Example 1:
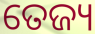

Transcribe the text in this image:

ତେଜ୍ୟ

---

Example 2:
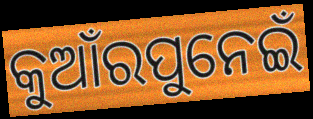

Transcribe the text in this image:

କୁଆଁରପୁନେଇଁ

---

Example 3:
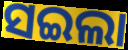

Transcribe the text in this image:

ସଇଲା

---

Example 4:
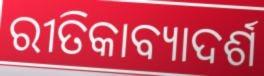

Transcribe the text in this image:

ରୀତିକାବ୍ୟାଦର୍ଶ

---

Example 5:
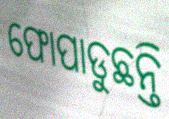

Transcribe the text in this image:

ଫୋପାଡୁଛନ୍ତି